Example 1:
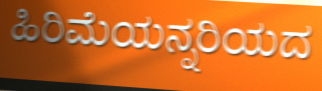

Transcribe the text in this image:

ಹಿರಿಮೆಯನ್ನರಿಯದ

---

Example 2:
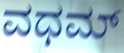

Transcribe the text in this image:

ವಧಮ್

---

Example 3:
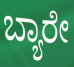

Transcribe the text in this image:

ಬ್ಯಾರೇ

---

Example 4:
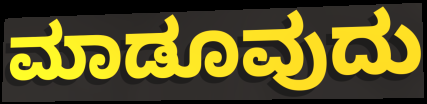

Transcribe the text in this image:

ಮಾಡೂವುದು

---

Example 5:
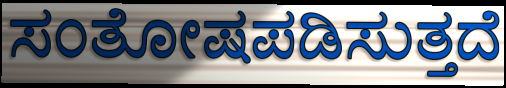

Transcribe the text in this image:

ಸಂತೋಷಪಡಿಸುತ್ತದೆ